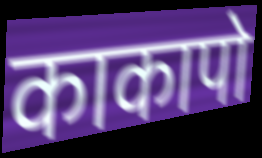
काकापो